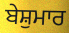
ਬੇਸ਼ੁਮਾਰ